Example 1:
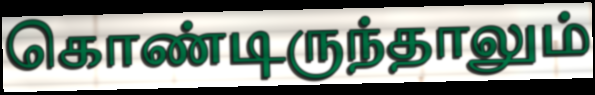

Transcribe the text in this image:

கொண்டிருந்தாலும்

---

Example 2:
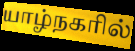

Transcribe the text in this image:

யாழ்நகரில்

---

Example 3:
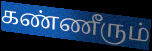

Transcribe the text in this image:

கண்ணீரும்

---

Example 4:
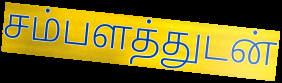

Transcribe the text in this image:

சம்பளத்துடன்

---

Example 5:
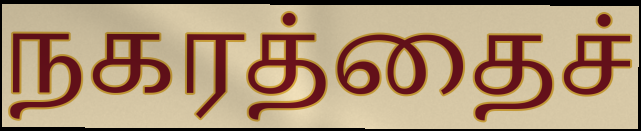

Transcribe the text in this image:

நகரத்தைச்